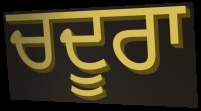
ਚਦੂਰਾ